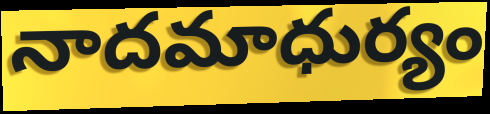
నాదమాధుర్యం